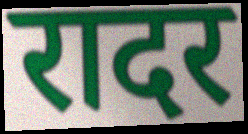
रादर